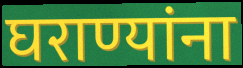
घराण्यांना